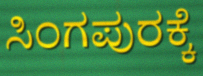
ಸಿಂಗಪುರಕ್ಕೆ